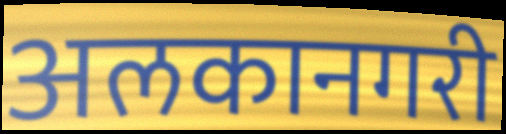
अलकानगरी